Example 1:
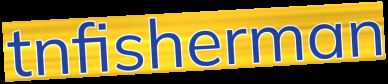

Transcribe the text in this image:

tnfisherman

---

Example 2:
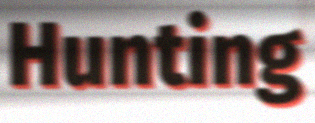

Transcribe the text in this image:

Hunting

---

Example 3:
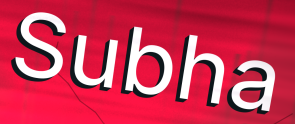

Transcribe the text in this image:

Subha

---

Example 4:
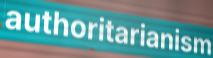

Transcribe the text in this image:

authoritarianism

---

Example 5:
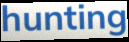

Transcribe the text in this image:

hunting